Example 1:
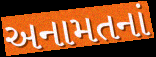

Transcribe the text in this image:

અનામતનાં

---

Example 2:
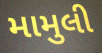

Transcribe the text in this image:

મામુલી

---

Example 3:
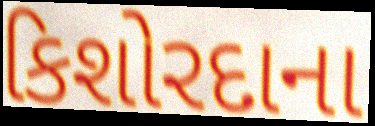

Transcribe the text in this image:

કિશોરદાના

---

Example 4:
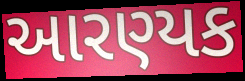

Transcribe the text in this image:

આરણ્યક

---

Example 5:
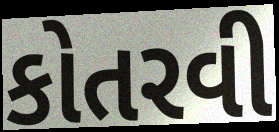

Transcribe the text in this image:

કોતરવી